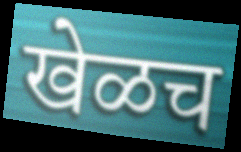
खेळच